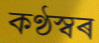
কণ্ঠস্বৰ